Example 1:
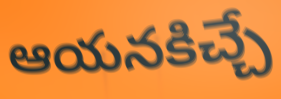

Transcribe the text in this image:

ఆయనకిచ్చే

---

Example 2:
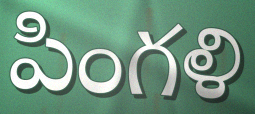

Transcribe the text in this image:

పింగళి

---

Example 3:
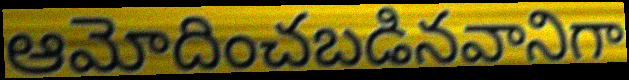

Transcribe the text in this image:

ఆమోదించబడినవానిగా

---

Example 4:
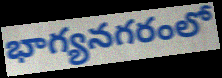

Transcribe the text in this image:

భాగ్యనగరంలో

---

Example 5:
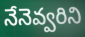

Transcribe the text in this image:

నేనెవ్వరిని